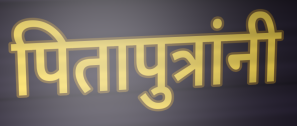
पितापुत्रांनी